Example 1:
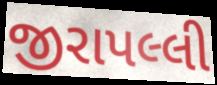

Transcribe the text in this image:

જીરાપલ્લી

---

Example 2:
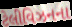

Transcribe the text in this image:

ટેલીવિઝનના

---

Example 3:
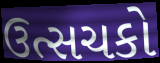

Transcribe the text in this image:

ઉત્સચકો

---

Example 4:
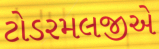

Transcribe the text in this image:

ટોડરમલજીએ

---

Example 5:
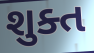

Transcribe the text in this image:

શુક્ત